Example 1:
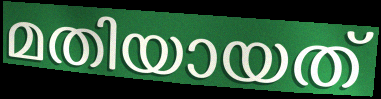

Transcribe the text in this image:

മതിയായത്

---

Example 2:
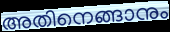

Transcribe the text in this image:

അതിനെങ്ങാനും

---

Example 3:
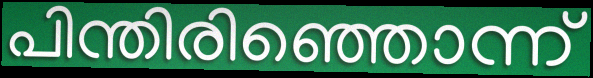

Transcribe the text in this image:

പിന്തിരിഞ്ഞൊന്ന്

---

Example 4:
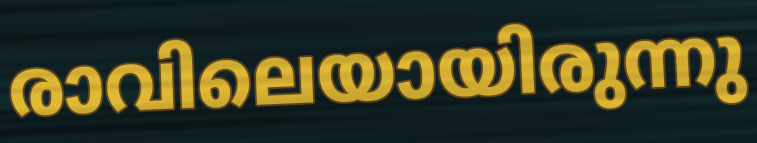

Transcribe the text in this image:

രാവിലെയായിരുന്നു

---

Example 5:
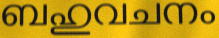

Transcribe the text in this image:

ബഹുവചനം